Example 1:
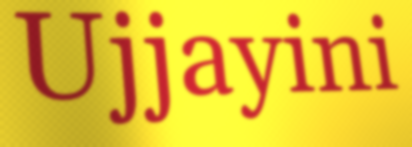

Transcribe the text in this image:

Ujjayini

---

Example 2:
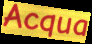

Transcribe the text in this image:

Acqua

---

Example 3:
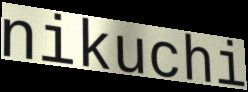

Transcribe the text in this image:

nikuchi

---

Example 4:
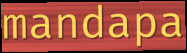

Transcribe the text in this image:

mandapa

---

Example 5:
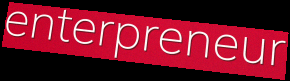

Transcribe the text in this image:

enterpreneur